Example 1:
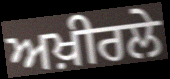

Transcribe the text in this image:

ਅਖ਼ੀਰਲੇ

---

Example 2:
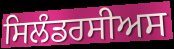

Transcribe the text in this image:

ਸਿਲੰਡਰਸੀਅਸ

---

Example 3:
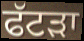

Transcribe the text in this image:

ਫੱਟੜਾ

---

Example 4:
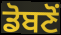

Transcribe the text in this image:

ਡੋਬਣੋਂ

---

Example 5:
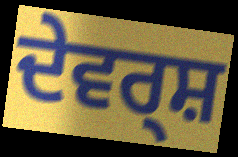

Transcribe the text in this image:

ਦੇਵਰ੍ਸ਼